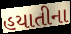
હયાતીના